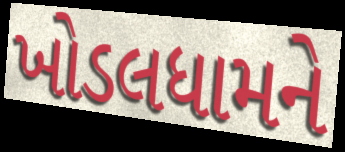
ખોડલધામને